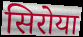
सिरोया